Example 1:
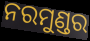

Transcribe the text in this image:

ନରମୁଣ୍ଡର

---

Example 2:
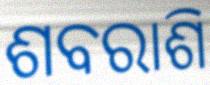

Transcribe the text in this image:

ଶବରାଶି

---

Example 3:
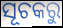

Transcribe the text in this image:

ସୂଚକରୁ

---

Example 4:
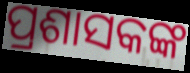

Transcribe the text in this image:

ପ୍ରଶାସକଙ୍କ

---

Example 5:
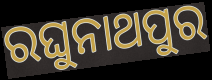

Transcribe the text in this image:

ରଘୁନାଥପୁର